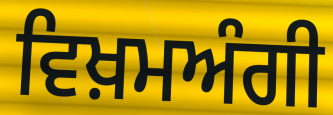
ਵਿਖ਼ਮਅੰਗੀ